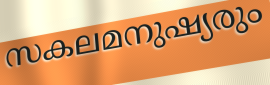
സകലമനുഷ്യരും